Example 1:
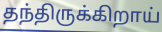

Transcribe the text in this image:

தந்திருக்கிறாய்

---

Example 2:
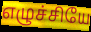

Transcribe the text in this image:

எழுச்சியே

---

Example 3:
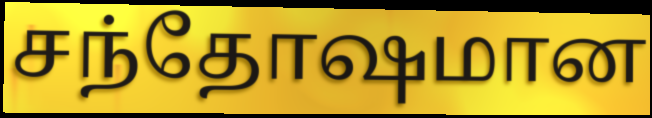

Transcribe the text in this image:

சந்தோஷமான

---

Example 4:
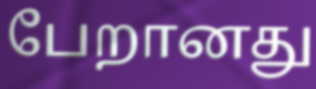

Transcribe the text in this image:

பேறானது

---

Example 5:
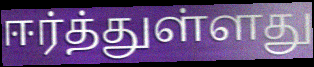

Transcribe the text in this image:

ஈர்த்துள்ளது